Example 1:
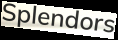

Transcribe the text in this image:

Splendors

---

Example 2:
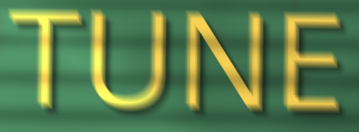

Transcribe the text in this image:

TUNE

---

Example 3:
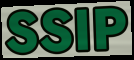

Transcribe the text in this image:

SSIP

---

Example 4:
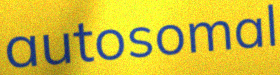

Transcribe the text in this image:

autosomal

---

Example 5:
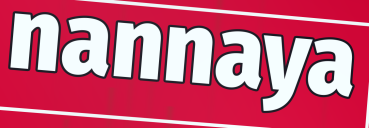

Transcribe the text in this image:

nannaya